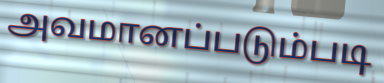
அவமானப்படும்படி